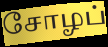
சோழப்